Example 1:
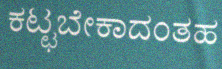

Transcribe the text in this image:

ಕಟ್ಟಬೇಕಾದಂತಹ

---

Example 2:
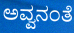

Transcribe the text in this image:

ಅವ್ವನಂತೆ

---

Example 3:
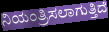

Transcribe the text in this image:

ನಿಯಂತ್ರಿಸಲಾಗುತ್ತಿದೆ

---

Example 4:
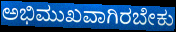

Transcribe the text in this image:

ಅಭಿಮುಖವಾಗಿರಬೇಕು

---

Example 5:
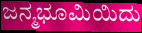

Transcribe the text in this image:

ಜನ್ಮಭೂಮಿಯಿದು